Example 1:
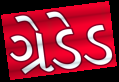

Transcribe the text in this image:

ગ્રેડેડ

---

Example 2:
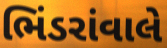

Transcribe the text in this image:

ભિંડરાંવાલે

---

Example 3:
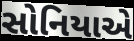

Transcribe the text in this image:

સોનિયાએ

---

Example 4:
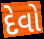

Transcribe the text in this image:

દેવો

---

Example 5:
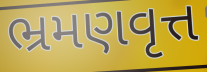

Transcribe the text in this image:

ભ્રમણવૃત્ત